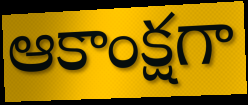
ఆకాంక్షగా